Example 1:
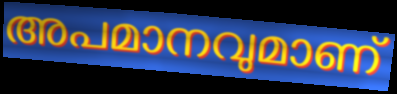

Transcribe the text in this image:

അപമാനവുമാണ്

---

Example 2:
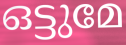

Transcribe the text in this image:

ഒട്ടുമേ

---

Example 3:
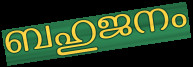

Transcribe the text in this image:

ബഹുജനം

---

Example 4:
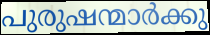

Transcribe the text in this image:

പുരുഷന്മാർക്കു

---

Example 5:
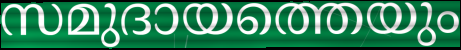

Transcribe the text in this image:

സമുദായത്തെയും